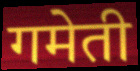
गमेती